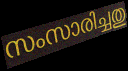
സംസാരിച്ചതു